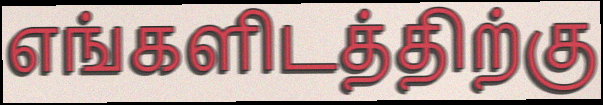
எங்களிடத்திற்கு